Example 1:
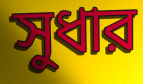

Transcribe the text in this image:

সুধার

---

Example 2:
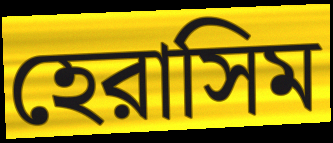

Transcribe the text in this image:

হেরাসিম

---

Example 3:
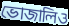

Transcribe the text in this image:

ভোজালিও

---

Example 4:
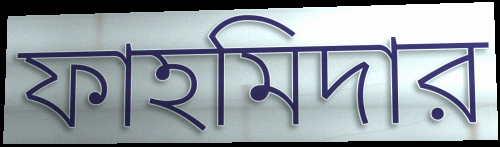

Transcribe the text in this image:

ফাহমিদার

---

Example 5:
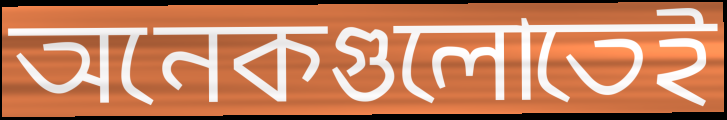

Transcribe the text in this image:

অনেকগুলোতেই